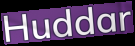
Huddar